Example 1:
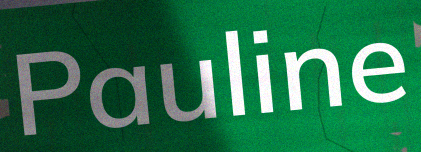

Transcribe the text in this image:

Pauline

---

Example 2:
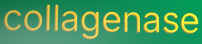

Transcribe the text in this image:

collagenase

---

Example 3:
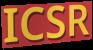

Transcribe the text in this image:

ICSR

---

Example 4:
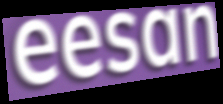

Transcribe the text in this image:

eesan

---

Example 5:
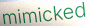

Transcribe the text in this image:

mimicked